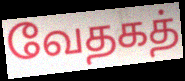
வேதகத்